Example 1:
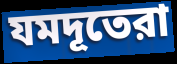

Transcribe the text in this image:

যমদূতেরা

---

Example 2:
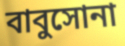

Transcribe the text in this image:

বাবুসোনা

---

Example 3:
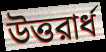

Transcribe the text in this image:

উত্তরার্ধ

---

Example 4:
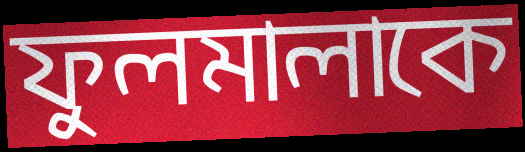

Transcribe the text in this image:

ফুলমালাকে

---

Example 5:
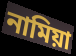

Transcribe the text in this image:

নামিয়া